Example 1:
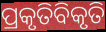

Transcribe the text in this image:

ପ୍ରକୃତିବିକୃତି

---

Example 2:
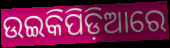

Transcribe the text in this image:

ଉଇକିପିଡ଼ିଆରେ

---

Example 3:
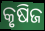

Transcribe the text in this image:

କୃଷିଜ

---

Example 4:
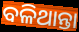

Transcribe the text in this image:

ବଳିଥାନ୍ତା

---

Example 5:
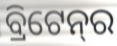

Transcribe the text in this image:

ବ୍ରିଟେନ୍‌ର